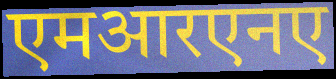
एमआरएनए